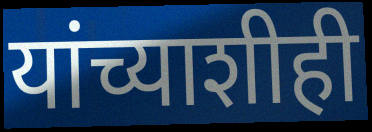
यांच्याशीही